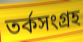
তর্কসংগ্রহ